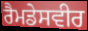
ਰੈਮਡੇਸਵੀਰ